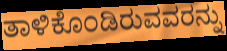
ತಾಳಿಕೊಂಡಿರುವವರನ್ನು